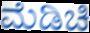
ಮೆಡಿಚಿ